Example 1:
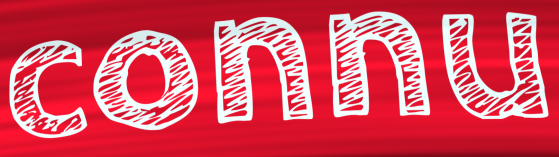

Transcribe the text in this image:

connu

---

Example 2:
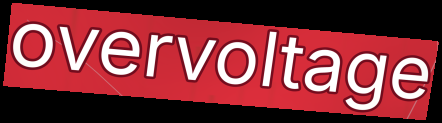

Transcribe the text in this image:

overvoltage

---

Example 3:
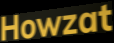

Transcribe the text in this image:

Howzat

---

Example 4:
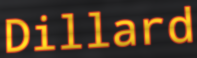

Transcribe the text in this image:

Dillard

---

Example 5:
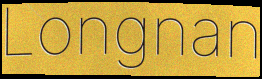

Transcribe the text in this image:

Longnan